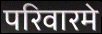
परिवारमे